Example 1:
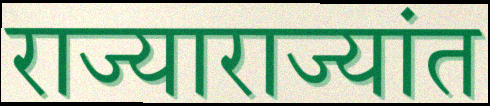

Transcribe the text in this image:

राज्याराज्यांत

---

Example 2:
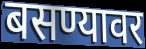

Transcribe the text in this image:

बसण्यावर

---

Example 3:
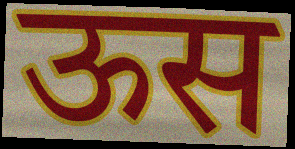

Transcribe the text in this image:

ऊस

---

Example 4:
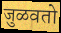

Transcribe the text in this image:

जुळवतो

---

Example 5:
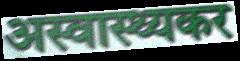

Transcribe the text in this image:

अस्वास्थ्यकर